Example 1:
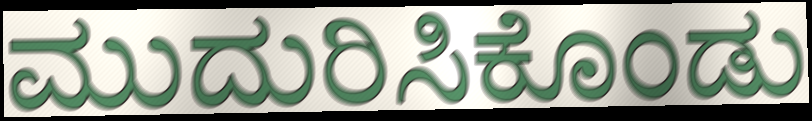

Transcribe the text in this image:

ಮುದುರಿಸಿಕೊಂಡು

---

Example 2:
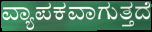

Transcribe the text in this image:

ವ್ಯಾಪಕವಾಗುತ್ತದೆ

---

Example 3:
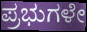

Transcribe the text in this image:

ಪ್ರಭುಗಳೇ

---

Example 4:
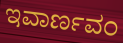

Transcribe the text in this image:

ಇವಾರ್ಣವಂ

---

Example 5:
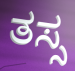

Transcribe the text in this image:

ತಸ್ಸ